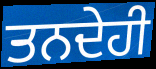
ਤਨਦੇਹੀ